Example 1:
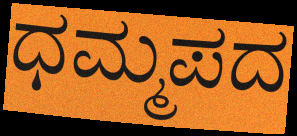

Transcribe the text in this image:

ಧಮ್ಮಪದ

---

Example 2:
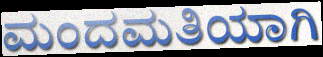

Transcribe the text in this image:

ಮಂದಮತಿಯಾಗಿ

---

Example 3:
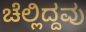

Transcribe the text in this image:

ಚೆಲ್ಲಿದ್ದವು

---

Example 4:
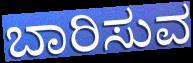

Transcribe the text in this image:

ಬಾರಿಸುವ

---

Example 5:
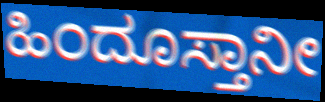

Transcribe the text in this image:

ಹಿಂದೂಸ್ತಾನೀ